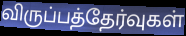
விருப்பத்தேர்வுகள்